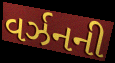
વર્ઝનની